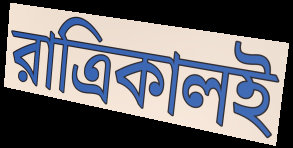
রাত্রিকালই